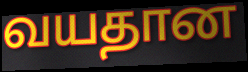
வயதான